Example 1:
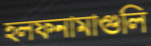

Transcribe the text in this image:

হলফনামাগুলি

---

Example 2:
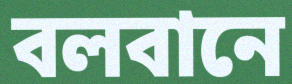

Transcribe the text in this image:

বলবানে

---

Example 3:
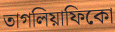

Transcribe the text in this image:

তাগলিয়াফিকো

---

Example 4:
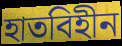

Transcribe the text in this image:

হাতবিহীন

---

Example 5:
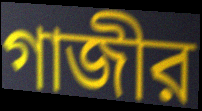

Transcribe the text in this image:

গাজীর